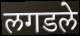
लगडले